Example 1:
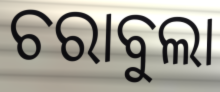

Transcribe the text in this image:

ଚରାବୁଲା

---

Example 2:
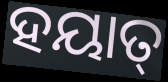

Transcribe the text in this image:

ହୟାତ୍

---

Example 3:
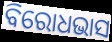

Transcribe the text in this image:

ବିରୋଧଭାସ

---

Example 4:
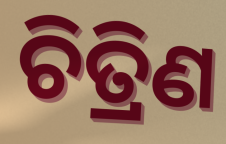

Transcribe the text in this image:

ଚିତ୍ରିଣ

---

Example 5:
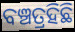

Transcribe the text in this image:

ବଞ୍ଚତ୍ରହିଛି